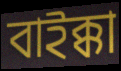
বাইক্কা